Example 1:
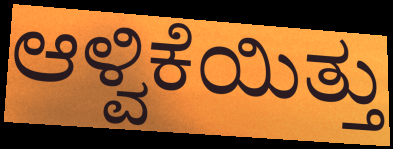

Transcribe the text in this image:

ಆಳ್ವಿಕೆಯಿತ್ತು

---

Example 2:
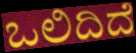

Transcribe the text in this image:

ಒಲಿದಿದೆ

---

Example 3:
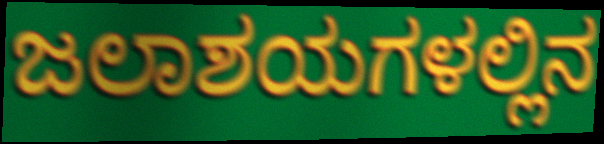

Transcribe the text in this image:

ಜಲಾಶಯಗಳಲ್ಲಿನ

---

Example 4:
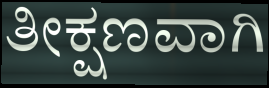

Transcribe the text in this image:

ತೀಕ್ಷಣವಾಗಿ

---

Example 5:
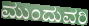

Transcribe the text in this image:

ಮುಂದುವರಿ